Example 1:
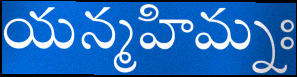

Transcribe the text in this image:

యన్మహిమ్నః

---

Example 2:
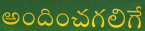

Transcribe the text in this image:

అందించగలిగే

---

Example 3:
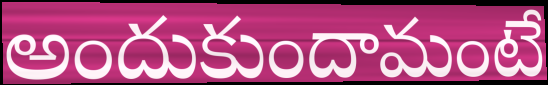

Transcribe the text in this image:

అందుకుందామంటే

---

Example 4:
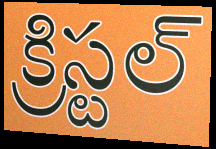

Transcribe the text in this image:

క్రిస్టల్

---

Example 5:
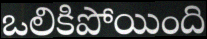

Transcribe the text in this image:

ఒలికిపోయింది